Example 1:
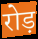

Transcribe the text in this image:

रोड़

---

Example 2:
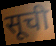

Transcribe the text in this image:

सूची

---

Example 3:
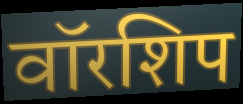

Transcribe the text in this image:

वॉरशिप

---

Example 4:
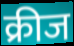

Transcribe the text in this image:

क्रीज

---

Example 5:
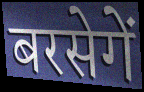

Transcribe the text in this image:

बरसेगें